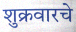
शुक्रवारचे